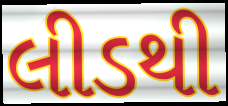
લીડથી